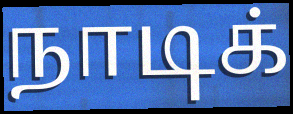
நாடிக்